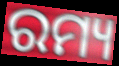
ରମ୍ୟ